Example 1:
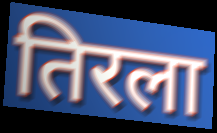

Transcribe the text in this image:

तिरला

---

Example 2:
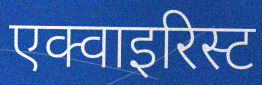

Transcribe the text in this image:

एक्वाइरिस्ट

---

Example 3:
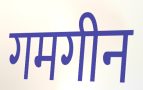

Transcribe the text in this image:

गमगीन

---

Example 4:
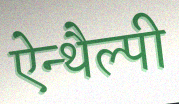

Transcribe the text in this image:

ऐन्थैल्पी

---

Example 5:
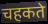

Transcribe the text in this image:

चहकते